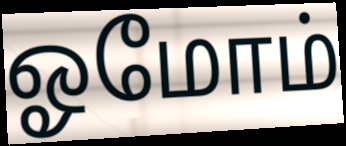
ஓமோம்